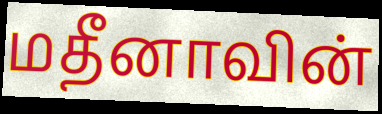
மதீனாவின்